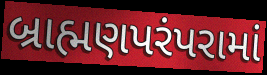
બ્રાહ્મણપરંપરામાં